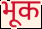
भूक